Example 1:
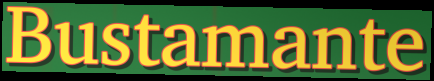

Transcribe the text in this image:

Bustamante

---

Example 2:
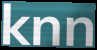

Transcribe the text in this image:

knn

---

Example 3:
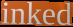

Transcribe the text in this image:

inked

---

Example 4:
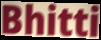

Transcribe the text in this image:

Bhitti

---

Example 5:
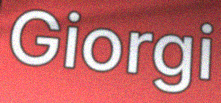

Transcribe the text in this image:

Giorgi